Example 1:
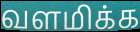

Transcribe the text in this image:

வளமிக்க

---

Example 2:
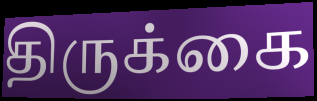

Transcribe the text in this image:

திருக்கை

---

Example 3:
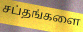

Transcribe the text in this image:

சப்தங்களை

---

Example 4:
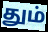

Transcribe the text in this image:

தும்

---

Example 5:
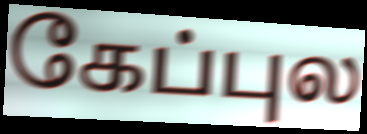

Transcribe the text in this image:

கேப்புல